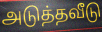
அடுத்தவீடு